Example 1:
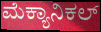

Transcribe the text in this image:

ಮೆಕ್ಯಾನಿಕಲ್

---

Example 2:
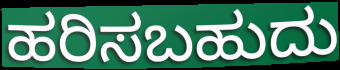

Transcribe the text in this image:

ಹರಿಸಬಹುದು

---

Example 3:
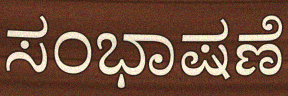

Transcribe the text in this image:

ಸಂಭಾಷಣೆ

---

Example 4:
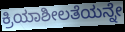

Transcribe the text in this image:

ಕ್ರಿಯಾಶೀಲತೆಯನ್ನೇ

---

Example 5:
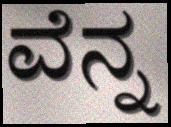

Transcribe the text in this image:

ವೆನ್ನ